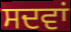
ਸਦਵਾਂ